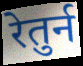
रेतुर्न